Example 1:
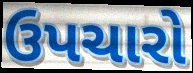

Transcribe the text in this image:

ઉપચારો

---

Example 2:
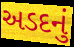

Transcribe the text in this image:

અડદનું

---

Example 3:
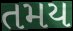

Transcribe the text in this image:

તમય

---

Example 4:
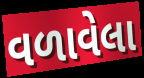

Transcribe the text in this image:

વળાવેલા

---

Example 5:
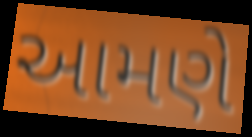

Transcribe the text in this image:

આમણે